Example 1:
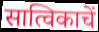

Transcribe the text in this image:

सात्विकाचें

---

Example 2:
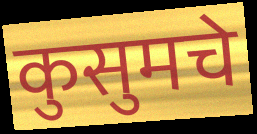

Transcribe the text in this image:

कुसुमचे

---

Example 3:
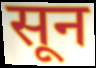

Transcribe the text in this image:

सून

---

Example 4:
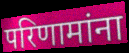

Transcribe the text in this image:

परिणामांना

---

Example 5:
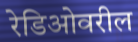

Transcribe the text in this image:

रेडिओवरील